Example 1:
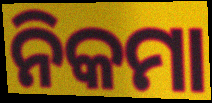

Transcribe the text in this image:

ନିକମା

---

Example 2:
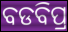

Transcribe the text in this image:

ବଡବିପ୍ର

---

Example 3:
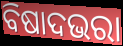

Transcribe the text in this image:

ବିଷାଦଭରା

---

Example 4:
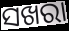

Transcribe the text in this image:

ସଖରା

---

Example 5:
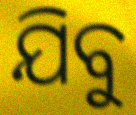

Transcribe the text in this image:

ଯିବୁ